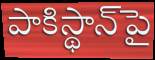
పాకిస్థాన్‌పై